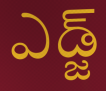
ఎడ్జ్